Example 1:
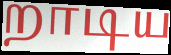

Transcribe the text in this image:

றாடிய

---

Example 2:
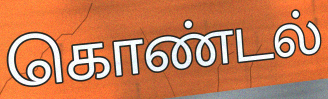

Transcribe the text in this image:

கொண்டல்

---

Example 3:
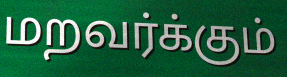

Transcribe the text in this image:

மறவர்க்கும்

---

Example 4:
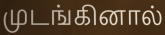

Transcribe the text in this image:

முடங்கினால்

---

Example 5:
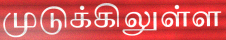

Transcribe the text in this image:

முடுக்கிலுள்ள